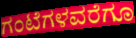
ಗಂಟೆಗಳವರೆಗೂ